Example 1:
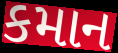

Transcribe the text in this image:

કમાન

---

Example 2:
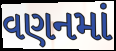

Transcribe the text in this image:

વણનમાં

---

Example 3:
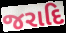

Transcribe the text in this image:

જરાદિ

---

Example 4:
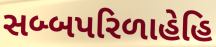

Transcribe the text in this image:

સબ્બપરિળાહેહિ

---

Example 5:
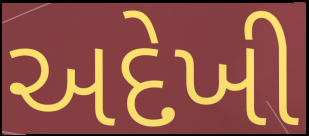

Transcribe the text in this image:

અદેખી